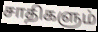
சாதிகளும்